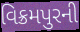
વિક્રમપુરની